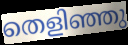
തെളിഞ്ഞു